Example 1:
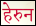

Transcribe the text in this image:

हेरुन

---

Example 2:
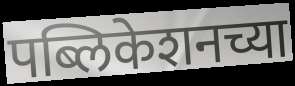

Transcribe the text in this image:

पब्लिकेशनच्या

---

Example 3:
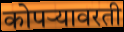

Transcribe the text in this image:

कोपऱ्यावरती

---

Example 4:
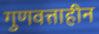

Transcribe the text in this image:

गुणवत्ताहीन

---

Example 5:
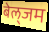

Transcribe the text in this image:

बेल्जम